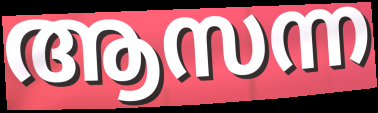
ആസന്ന